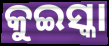
କୁଇସ୍କା